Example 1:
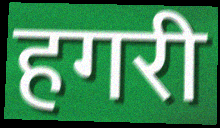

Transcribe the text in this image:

हगरी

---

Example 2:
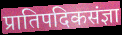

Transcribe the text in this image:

प्रातिपदिकसंज्ञा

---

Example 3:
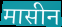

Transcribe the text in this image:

मासीन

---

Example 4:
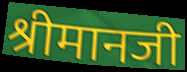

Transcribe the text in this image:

श्रीमानजी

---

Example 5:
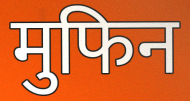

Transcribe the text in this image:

मुफिन